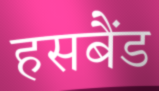
हसबैंड